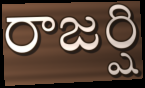
రాజర్షి